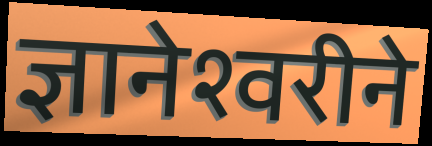
ज्ञानेश्वरीने